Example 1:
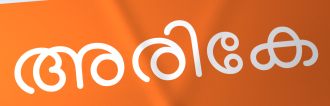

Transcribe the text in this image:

അരികേ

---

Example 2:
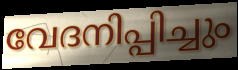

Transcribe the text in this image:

വേദനിപ്പിച്ചും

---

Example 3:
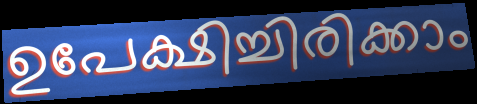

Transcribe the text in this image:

ഉപേക്ഷിച്ചിരിക്കാം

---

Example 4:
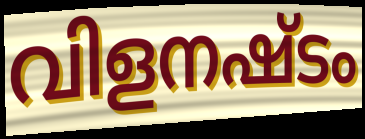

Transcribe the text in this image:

വിളനഷ്ടം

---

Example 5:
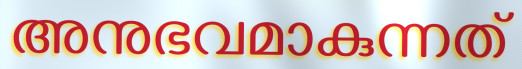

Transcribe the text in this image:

അനുഭവമാകുന്നത്